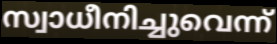
സ്വാധീനിച്ചുവെന്ന്